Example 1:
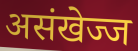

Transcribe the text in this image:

असंखेज्ज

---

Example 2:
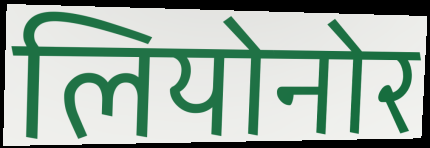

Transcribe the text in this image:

लियोनोर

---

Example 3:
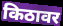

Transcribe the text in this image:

किठावर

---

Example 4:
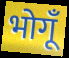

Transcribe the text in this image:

भोगूँ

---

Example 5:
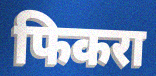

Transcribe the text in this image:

फिकरा